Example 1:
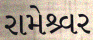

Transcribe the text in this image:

રામેશ્ર્વર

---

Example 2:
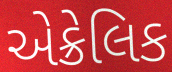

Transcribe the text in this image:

એક્રેલિક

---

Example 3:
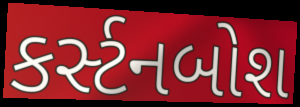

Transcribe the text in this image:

કર્સ્ટનબોશ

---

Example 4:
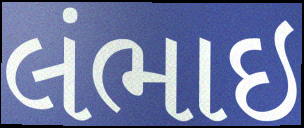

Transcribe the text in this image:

લંભાઇ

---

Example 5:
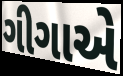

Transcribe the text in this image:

ગીગાએ